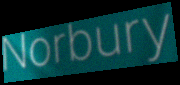
Norbury